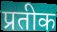
प्रतीक